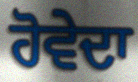
ਹੋਵੇਦਾ